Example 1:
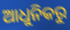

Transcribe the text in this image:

ଆଧୁନିକରୁ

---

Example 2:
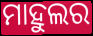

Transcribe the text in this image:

ମାହୁଲର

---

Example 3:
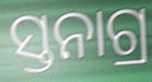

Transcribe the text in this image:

ସ୍ତନାଗ୍ର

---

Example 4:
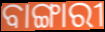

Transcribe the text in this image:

ବାଙ୍ଗାରୀ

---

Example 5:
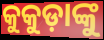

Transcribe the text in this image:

କୁକୁଡ଼ାଙ୍କୁ